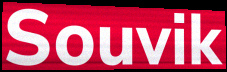
Souvik